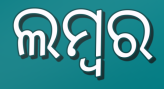
ଲମ୍ୱର